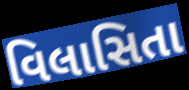
વિલાસિતા